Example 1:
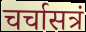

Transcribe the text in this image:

चर्चासत्रं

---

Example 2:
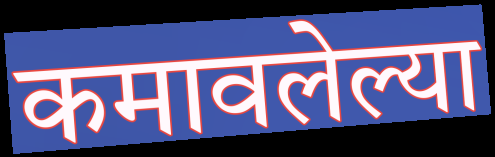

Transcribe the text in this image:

कमावलेल्या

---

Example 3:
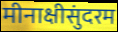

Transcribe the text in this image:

मीनाक्षीसुंदरम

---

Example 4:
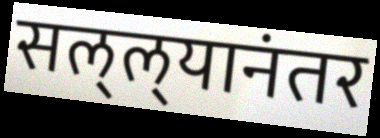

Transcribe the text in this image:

सल्ल्यानंतर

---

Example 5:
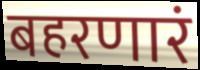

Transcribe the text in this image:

बहरणारं